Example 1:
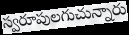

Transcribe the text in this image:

స్వరూపులగుచున్నారు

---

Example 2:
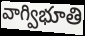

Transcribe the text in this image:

వాగ్విభూతి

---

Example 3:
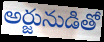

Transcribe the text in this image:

అర్జునుడితో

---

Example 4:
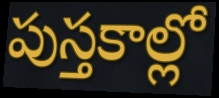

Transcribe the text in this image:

పుస్తకాల్లో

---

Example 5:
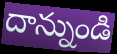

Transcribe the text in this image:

దాన్నుండి